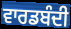
ਵਾਰਡਬੰਦੀ